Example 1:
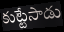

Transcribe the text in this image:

కుట్టేసాడు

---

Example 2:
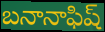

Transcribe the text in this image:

బనానాఫిష్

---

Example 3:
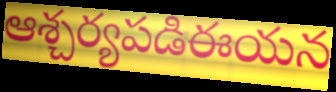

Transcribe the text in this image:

ఆశ్చర్యపడిఈయన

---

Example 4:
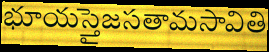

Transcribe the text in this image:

భూయస్తైజసతామసావితి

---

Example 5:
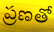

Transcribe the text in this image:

ప్రణతో